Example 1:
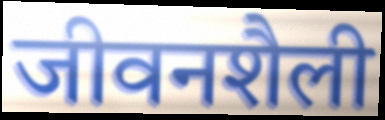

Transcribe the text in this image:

जीवनशैली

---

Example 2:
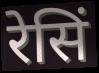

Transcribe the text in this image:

रेसिं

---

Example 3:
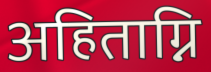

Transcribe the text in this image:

अहिताग्नि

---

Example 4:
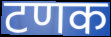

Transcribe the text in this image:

टणक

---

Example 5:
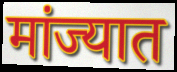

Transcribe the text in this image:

मांज्यात